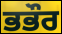
ਭਭੌਰ